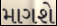
માગશે